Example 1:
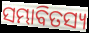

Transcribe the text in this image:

ସମ୍ଭାବିତସ୍ୟ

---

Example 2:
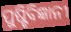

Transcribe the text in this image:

ପୁଷ୍ଟିବିଜ୍ଞାନୀ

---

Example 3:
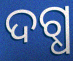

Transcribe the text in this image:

ଦଗ୍ଧ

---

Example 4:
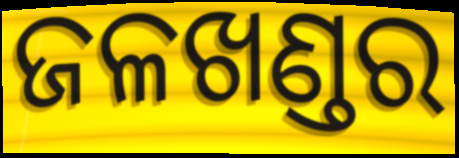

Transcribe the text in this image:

ଜଳଖଣ୍ଡର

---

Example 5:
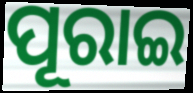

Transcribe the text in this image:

ପୂରାଇ